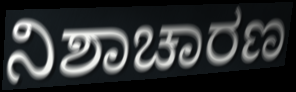
ನಿಶಾಚಾರಣ